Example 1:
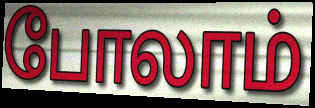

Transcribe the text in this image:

போலாம்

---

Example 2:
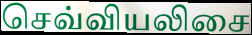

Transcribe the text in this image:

செவ்வியலிசை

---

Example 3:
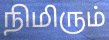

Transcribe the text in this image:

நிமிரும்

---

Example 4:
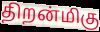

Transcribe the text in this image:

திறன்மிகு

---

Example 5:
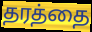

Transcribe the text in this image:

தரத்தை